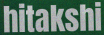
hitakshi